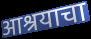
आश्रयाचा